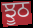
ਝੂਠ